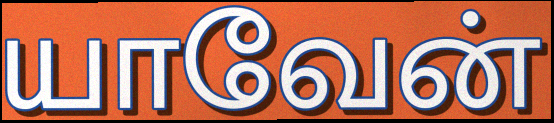
யாவேன்